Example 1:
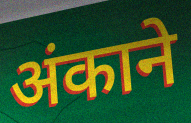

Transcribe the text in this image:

अंकाने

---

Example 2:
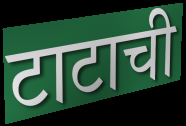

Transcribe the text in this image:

टाटाची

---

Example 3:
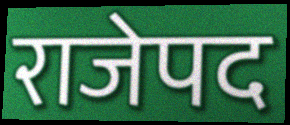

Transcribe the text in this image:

राजेपद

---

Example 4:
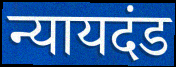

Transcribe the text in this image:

न्यायदंड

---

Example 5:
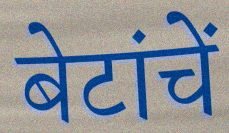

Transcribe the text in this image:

बेटांचें